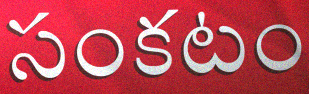
సంకటం